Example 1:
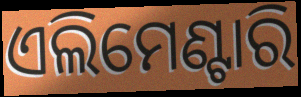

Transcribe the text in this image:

ଏଲିମେଣ୍ଟାରି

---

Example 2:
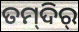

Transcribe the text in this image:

ତମ୍‍ଦିର୍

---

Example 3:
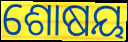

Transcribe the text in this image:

ଶୋଷୟ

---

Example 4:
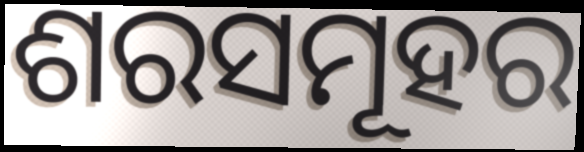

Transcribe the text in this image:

ଶରସମୂହର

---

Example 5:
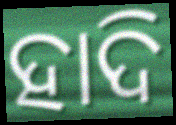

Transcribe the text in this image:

ହାଦି